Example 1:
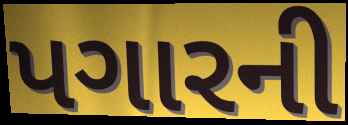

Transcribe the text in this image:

પગારની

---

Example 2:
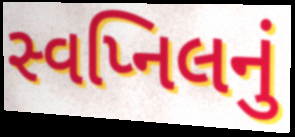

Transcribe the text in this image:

સ્વપ્નિલનું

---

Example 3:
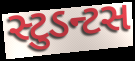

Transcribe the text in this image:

સ્ટુડન્ટસ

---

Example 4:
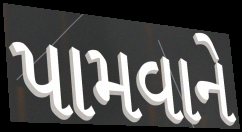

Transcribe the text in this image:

પામવાને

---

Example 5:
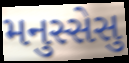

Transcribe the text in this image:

મનુસ્સેસુ